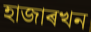
হাজাৰখন